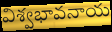
విశ్వభావనాయ